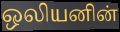
ஒலியனின்